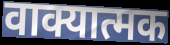
वाक्यात्मक